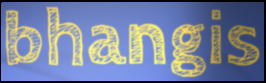
bhangis